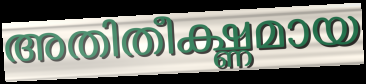
അതിതീക്ഷ്ണമായ